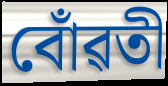
বোঁৱতী